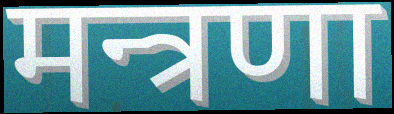
मन्त्रणा